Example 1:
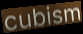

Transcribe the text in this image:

cubism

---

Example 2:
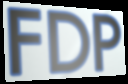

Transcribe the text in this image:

FDP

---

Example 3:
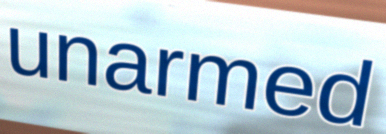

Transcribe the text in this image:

unarmed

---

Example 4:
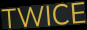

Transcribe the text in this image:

TWICE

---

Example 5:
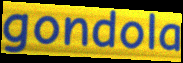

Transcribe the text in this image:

gondola